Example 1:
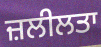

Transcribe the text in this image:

ਜ਼ਲੀਲਤਾ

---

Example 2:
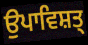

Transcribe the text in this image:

ਉਪਾਵਿਸ਼ਤ੍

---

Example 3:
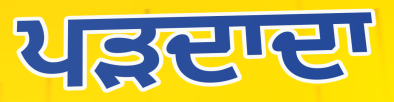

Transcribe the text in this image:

ਪੜਦਾਦਾ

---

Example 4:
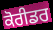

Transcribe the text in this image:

ਕੋਰੀਡਰ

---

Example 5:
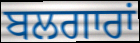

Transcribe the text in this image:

ਬਲਗਾਰਾਂ